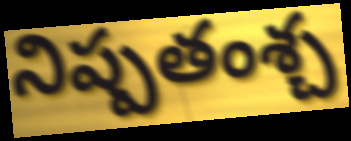
నిష్పతంశ్చ